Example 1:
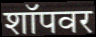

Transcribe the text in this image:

शॉपवर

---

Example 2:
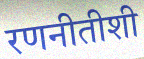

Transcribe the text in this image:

रणनीतीशी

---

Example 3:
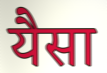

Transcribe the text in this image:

यैसा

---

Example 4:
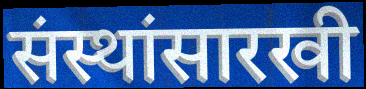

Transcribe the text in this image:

संस्थांसारखी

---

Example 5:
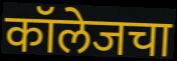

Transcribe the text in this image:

कॉलेजचा